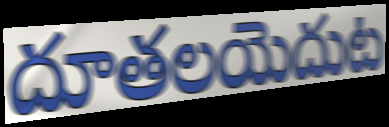
దూతలయెదుట